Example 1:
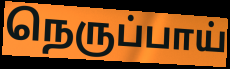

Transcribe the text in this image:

நெருப்பாய்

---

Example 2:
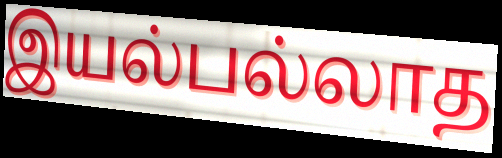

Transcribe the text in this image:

இயல்பல்லாத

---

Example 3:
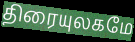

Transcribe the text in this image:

திரையுலகமே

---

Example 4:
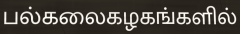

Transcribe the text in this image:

பல்கலைகழகங்களில்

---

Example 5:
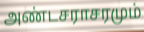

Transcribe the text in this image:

அண்டசராசரமும்